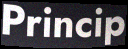
Princip